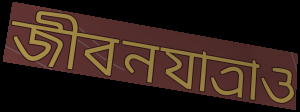
জীবনযাত্রাও